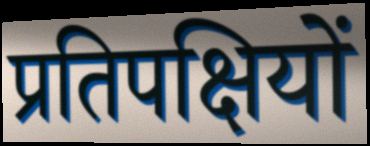
प्रतिपक्षियों